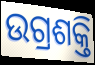
ଉଗ୍ରଶକ୍ତି